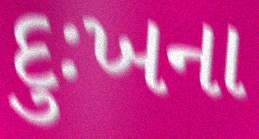
દુઃખના